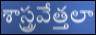
శాస్త్రవేత్తలా